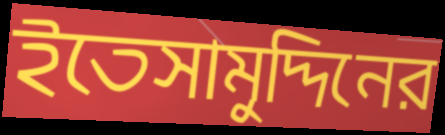
ইতেসামুদ্দিনের